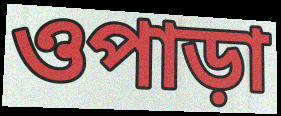
ওপাড়া